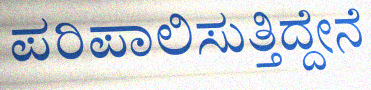
ಪರಿಪಾಲಿಸುತ್ತಿದ್ದೇನೆ